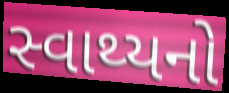
સ્વાથ્યનો